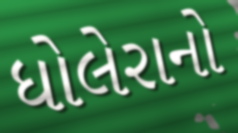
ધોલેરાનો